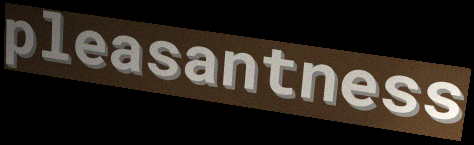
pleasantness